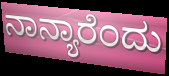
ನಾನ್ಯಾರೆಂದು